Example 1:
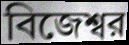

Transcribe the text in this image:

বিজেশ্বর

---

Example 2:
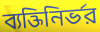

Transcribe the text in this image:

ব্যক্তিনির্ভর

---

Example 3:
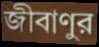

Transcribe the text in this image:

জীবাণুর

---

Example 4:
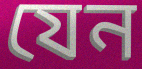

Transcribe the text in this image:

যেন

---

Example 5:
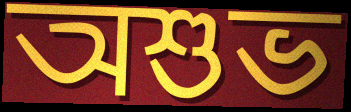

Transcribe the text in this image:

অশুভ